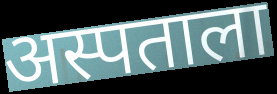
अस्पताला